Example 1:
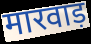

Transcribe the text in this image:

मारवाड़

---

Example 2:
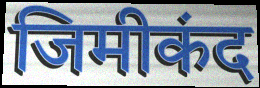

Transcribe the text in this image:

जिमीकंद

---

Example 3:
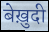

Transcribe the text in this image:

बेख़ुदी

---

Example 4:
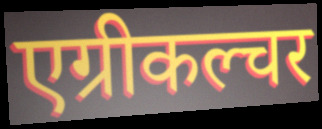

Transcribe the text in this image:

एग्रीकल्चर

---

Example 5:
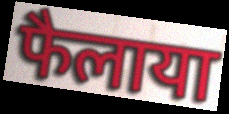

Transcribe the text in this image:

फैलाया